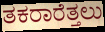
ತಕರಾರೆತ್ತಲು